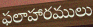
ఫలాహారములు